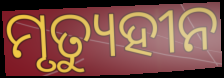
ମୃତ୍ୟୁହୀନ